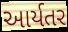
આર્યતર